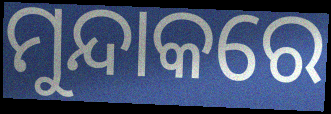
ମୁନ୍ଦାକରେ